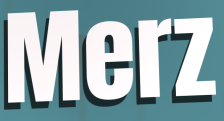
Merz